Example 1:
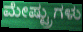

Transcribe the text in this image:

ಮೇಷ್ಟ್ರುಗಳು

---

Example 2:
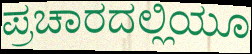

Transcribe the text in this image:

ಪ್ರಚಾರದಲ್ಲಿಯೂ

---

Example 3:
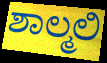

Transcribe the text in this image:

ಶಾಲ್ಮಲಿ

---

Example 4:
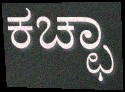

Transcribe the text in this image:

ಕಚ್ಛಾ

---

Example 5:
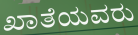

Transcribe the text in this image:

ಖಾತೆಯವರು